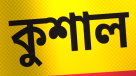
কুশাল